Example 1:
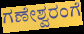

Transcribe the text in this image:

ಗಣೇಶ್ವರಂಗೆ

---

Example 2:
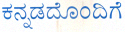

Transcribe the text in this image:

ಕನ್ನಡದೊಂದಿಗೆ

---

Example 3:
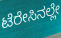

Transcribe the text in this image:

ಟೆರೇಸಿನಲ್ಲೇ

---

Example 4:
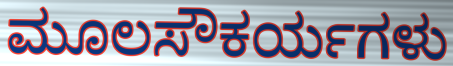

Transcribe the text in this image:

ಮೂಲಸೌಕರ್ಯಗಳು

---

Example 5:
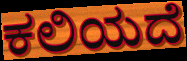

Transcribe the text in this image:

ಕಲಿಯದೆ